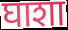
घाशा